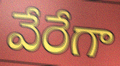
వేరేగా